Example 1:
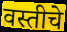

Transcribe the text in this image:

वस्तीचे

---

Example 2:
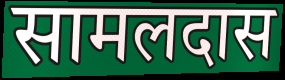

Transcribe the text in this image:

सामलदास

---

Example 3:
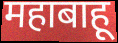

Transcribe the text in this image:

महाबाहू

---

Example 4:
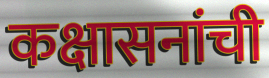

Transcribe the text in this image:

कक्षासनांची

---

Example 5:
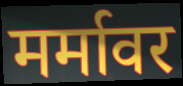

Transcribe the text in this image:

मर्मावर